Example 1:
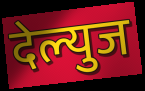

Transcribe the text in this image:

देल्युज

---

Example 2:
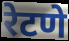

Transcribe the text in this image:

रेटणे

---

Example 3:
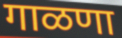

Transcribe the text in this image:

गाळणा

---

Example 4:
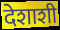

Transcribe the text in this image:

देशाशी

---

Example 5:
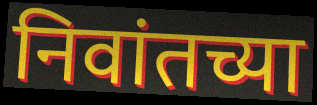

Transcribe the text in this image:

निवांतच्या